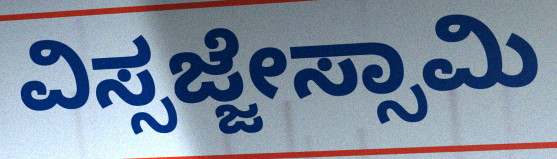
ವಿಸ್ಸಜ್ಜೇಸ್ಸಾಮಿ